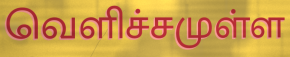
வெளிச்சமுள்ள